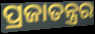
ପ୍ରଜାତନ୍ତ୍ରର